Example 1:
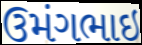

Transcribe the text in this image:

ઉમંગભાઇ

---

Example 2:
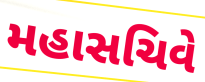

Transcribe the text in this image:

મહાસચિવે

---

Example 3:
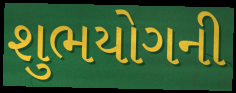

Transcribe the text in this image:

શુભયોગની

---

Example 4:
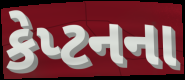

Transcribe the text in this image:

કેપ્ટનના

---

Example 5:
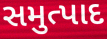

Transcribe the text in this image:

સમુત્પાદ